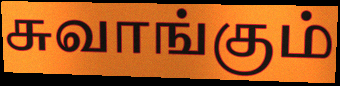
சுவாங்கும்